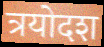
त्रयोदश